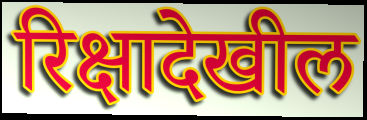
रिक्षादेखील